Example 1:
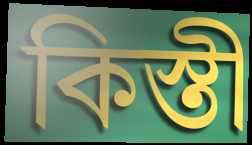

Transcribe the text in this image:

কিস্তী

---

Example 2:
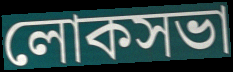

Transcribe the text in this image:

লোকসভা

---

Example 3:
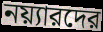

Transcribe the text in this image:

নয়্যারদের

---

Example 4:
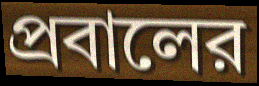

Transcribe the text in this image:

প্রবালের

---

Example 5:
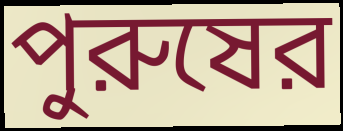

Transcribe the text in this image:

পুরুষের